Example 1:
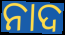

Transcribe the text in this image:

ନାଦ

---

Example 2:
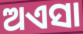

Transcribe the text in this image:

ଅଏସା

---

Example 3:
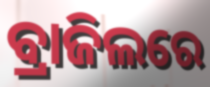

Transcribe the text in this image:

ବ୍ରାଜିଲରେ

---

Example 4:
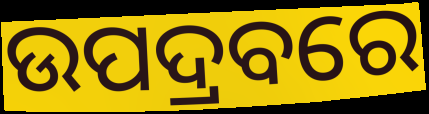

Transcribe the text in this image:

ଉପଦ୍ରବରେ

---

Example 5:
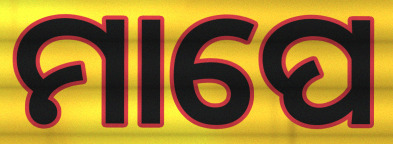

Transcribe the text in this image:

ମାପେ